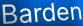
Barden